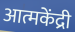
आत्मकेंद्री